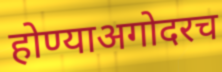
होण्याअगोदरच